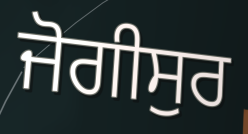
ਜੋਗੀਸੁਰ